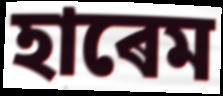
হাৰেম